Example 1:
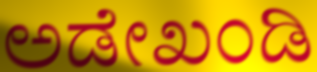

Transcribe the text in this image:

ಅಡೇಖಂಡಿ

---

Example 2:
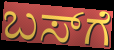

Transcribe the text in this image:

ಬಸ್‍ಗೆ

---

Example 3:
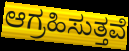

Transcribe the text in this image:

ಆಗ್ರಹಿಸುತ್ತವೆ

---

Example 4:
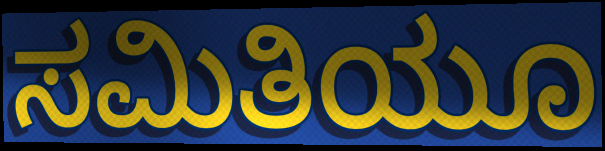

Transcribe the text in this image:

ಸಮಿತಿಯೂ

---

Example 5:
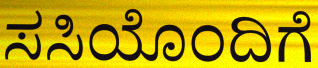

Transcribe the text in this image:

ಸಸಿಯೊಂದಿಗೆ